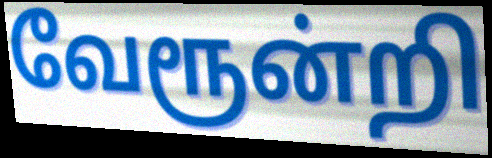
வேரூன்றி